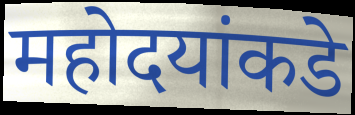
महोदयांकडे